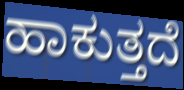
ಹಾಕುತ್ತದೆ